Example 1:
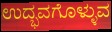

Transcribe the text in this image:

ಉದ್ಭವಗೊಳ್ಳುವ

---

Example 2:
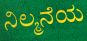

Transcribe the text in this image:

ನಿಲ್ಮನೆಯ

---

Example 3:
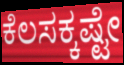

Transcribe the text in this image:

ಕೆಲಸಕ್ಕಷ್ಟೇ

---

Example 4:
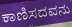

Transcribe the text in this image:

ಕಾಣಿಸದವನು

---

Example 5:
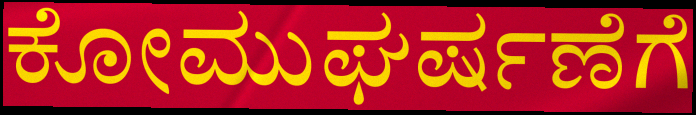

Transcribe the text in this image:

ಕೋಮುಘರ್ಷಣೆಗೆ